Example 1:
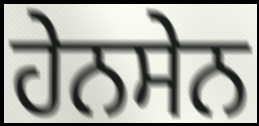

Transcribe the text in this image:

ਹੇਨਸੇਨ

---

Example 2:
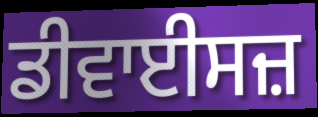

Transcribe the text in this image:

ਡੀਵਾਈਸਜ਼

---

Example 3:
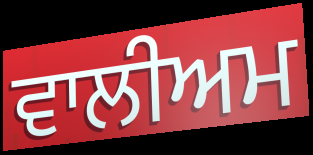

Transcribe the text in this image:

ਵਾਲੀਅਮ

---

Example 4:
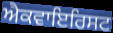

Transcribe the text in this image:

ਐਕਵਾਇਰਿਸਟ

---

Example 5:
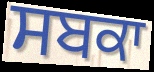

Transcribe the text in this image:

ਸਬਕਾ